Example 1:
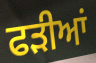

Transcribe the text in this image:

ਫੜੀਆਂ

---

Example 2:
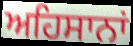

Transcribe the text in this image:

ਅਹਿਸਾਨਾਂ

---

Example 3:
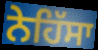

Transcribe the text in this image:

ਨੇਹਿੱਸਾ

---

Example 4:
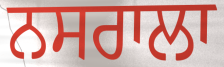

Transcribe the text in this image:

ਨਸਰਾਲਾ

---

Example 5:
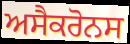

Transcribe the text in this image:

ਅਸੈਕਰੋਨਸ